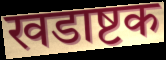
खडाष्टक